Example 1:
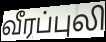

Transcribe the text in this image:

வீரப்புலி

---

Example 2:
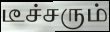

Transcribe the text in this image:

டீச்சரும்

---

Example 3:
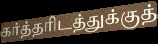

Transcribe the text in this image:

கர்த்தரிடத்துக்குத்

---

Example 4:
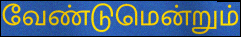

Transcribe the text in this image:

வேண்டுமென்றும்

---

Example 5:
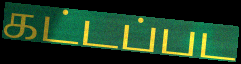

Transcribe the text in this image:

கட்டப்பட